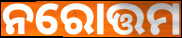
ନରୋତ୍ତମ